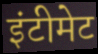
इंटीमेट